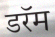
डरॅम